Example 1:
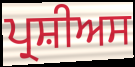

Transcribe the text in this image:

ਪ੍ਰਸ਼ੀਅਸ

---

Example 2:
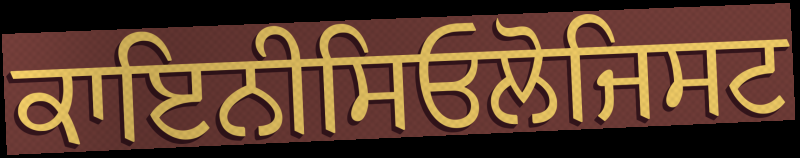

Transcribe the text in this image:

ਕਾਇਨੀਸਿਓਲੋਜਿਸਟ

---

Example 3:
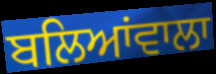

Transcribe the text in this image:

ਬਲਿਆਂਵਾਲਾ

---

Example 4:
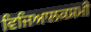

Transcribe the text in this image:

ਵਿਜਿਆਲਕਸ਼ਮੀ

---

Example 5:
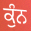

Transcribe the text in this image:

ਕੁੰਨ